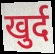
खुर्द